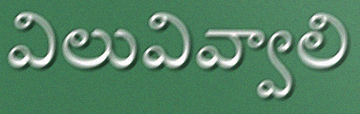
విలువివ్వాలి